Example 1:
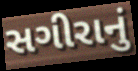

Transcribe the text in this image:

સગીરાનું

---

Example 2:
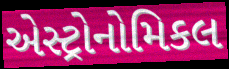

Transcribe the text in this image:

એસ્ટ્રોનોમિકલ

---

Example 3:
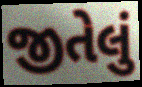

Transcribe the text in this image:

જીતેલું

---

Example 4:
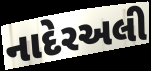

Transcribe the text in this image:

નાદેરઅલી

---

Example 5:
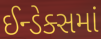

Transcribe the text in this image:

ઈન્ડેક્સમાં